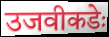
उजवीकडेः